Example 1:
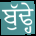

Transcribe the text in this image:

ਬੁੱਢ੍ਹੇ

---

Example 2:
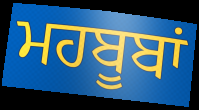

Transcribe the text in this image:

ਮਹਬੂਬਾਂ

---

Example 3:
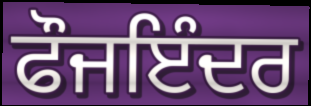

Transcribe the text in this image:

ਫੌਜਇੰਦਰ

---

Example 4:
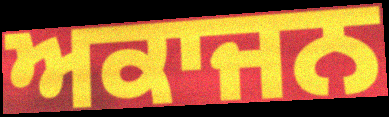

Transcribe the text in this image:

ਅਕਾਜਨ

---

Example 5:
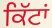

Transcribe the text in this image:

ਕਿੱਟਾਂ